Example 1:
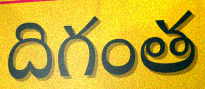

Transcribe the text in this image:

దిగంత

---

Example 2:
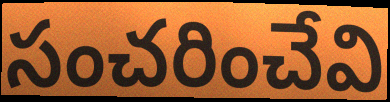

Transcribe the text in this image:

సంచరించేవి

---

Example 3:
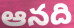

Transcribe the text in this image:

ఆనది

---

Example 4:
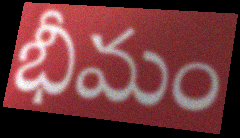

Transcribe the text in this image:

భీమం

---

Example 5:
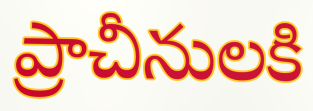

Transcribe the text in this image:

ప్రాచీనులకి